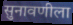
सुनावणीला